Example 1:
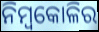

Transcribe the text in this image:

ନିମ୍ବକୋଳିର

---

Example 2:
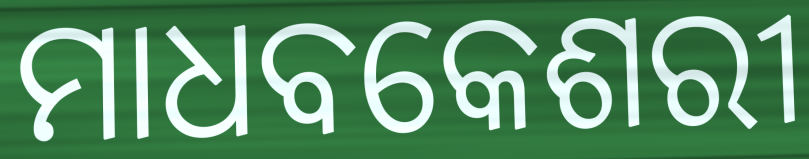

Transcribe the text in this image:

ମାଧବକେଶରୀ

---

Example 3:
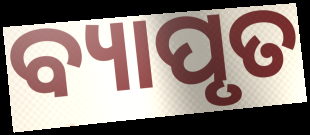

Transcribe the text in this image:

ବ୍ୟାପୃତ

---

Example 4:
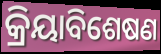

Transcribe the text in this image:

କ୍ରିୟାବିଶେଷଣ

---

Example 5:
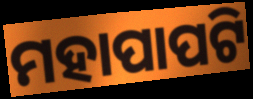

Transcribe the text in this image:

ମହାପାପଟି